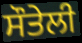
ਸੌਤੇਲੀ